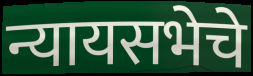
न्यायसभेचे